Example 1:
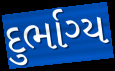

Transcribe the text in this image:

દુર્ભાગ્ય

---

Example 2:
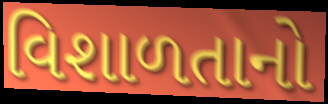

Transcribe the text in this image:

વિશાળતાનો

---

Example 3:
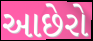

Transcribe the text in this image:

આછેરો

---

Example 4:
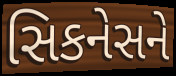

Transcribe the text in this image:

સિકનેસને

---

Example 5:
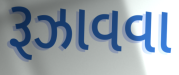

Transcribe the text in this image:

રૂઝાવવા